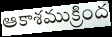
ఆకాశముక్రింద